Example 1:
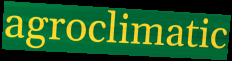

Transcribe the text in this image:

agroclimatic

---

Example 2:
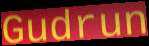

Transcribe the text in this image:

Gudrun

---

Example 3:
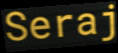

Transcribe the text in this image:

Seraj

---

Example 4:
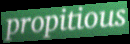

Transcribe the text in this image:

propitious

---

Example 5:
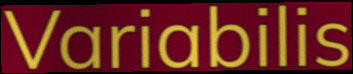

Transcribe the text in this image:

Variabilis